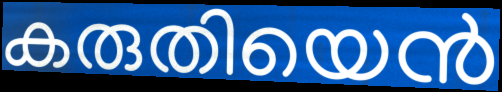
കരുതിയെൻ